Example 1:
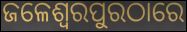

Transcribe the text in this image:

ଜଳେଶ୍ୱରପୁରଠାରେ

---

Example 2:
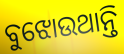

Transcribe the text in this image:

ବୁଝୋଉଥାନ୍ତି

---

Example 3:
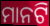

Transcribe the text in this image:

ମାନଟି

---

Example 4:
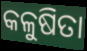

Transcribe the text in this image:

କଳୁଷିତା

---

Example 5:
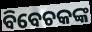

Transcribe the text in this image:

ବିବେଚକଙ୍କ